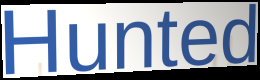
Hunted